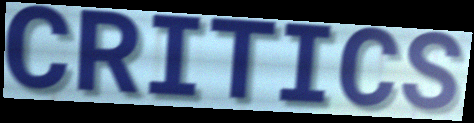
CRITICS